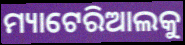
ମ୍ୟାଟେରିଆଲକୁ